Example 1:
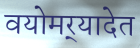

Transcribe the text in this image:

वयोमर्यादेत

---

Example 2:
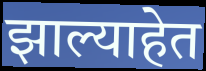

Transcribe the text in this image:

झाल्याहेत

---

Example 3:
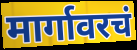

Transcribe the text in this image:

मार्गावरचं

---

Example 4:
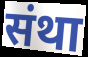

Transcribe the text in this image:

संथा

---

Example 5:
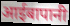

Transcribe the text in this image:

आईबापानी